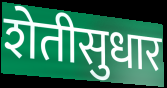
शेतीसुधार